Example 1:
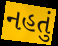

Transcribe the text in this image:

નહતું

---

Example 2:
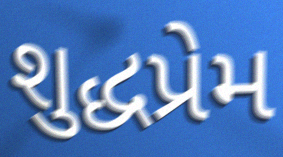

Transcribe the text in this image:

શુદ્ધપ્રેમ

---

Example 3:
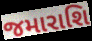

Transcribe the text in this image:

જમારાશિ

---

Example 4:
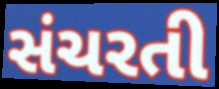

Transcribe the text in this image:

સંચરતી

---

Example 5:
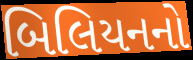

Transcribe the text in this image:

બિલિયનનો